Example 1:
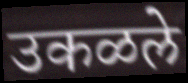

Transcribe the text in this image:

उकळले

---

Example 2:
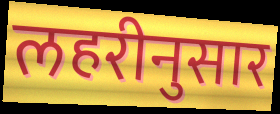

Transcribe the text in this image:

लहरीनुसार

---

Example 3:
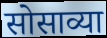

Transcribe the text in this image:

सोसाव्या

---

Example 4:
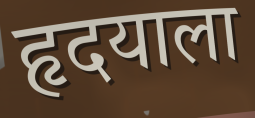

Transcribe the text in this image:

हृदयाला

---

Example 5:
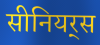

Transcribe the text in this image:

सीनियर्स